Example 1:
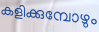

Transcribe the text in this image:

കളിക്കുമ്പോഴും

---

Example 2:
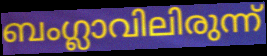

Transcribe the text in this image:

ബംഗ്ലാവിലിരുന്ന്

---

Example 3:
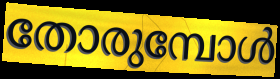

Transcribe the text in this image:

തോരുമ്പോൾ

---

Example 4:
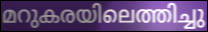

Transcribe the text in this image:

മറുകരയിലെത്തിച്ചു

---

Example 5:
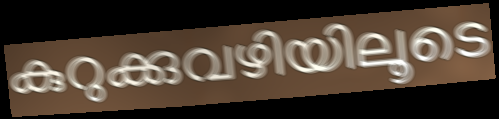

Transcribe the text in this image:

കുറുക്കുവഴിയിലൂടെ